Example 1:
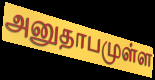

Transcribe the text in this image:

அனுதாபமுள்ள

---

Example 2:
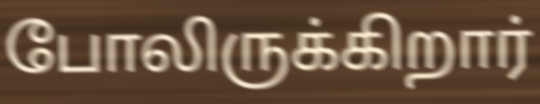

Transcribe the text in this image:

போலிருக்கிறார்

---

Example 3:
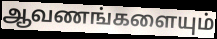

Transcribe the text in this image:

ஆவணங்களையும்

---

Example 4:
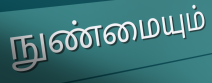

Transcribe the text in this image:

நுண்மையும்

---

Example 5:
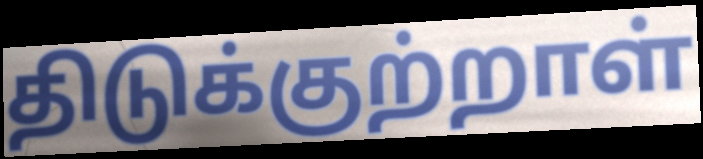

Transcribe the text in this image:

திடுக்குற்றாள்